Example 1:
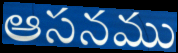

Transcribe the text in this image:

ఆసనము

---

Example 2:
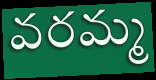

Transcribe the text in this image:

వరమ్మ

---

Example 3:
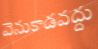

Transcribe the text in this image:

వెనుకాడవద్దు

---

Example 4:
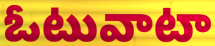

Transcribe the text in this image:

ఓటువాటా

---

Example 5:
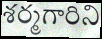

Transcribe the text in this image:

శర్మగారిని